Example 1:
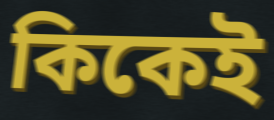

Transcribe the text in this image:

কিকেই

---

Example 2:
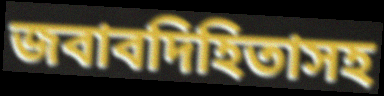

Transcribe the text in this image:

জবাবদিহিতাসহ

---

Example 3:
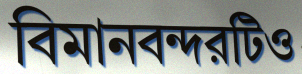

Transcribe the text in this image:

বিমানবন্দরটিও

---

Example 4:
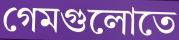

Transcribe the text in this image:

গেমগুলোতে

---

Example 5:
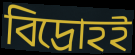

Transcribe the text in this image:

বিদ্রোহই